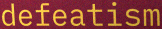
defeatism